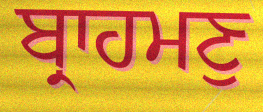
ਬ੍ਰਾਹਮਣੁ